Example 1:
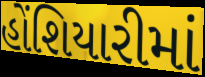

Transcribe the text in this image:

હોંશિયારીમાં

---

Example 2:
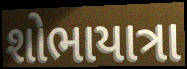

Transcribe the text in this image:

શોભાયાત્રા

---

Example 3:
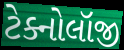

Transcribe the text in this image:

ટેક્નોલૉજી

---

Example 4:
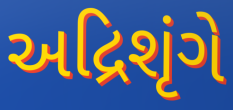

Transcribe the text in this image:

અદ્રિશૃંગે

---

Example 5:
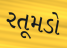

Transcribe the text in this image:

રતૂમડો